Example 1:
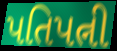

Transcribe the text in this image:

પતિપત્ની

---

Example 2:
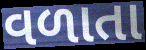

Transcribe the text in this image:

વળાતા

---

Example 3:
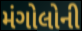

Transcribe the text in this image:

મંગોલોની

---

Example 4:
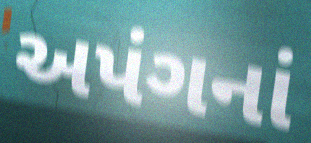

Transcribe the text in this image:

અપંગનાં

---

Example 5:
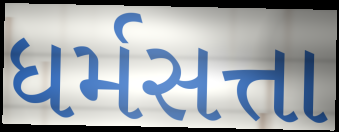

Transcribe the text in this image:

ધર્મસત્તા